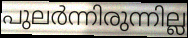
പുലർന്നിരുന്നില്ല